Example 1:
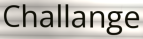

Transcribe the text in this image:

Challange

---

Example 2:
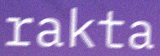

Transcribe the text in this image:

rakta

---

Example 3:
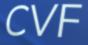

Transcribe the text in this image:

CVF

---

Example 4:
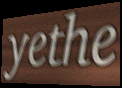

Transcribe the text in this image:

yethe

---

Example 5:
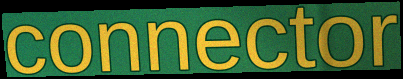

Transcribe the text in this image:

connector